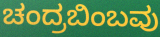
ಚಂದ್ರಬಿಂಬವು